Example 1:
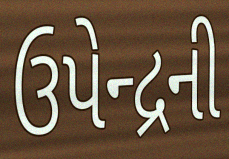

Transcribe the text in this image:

ઉપેન્દ્રની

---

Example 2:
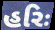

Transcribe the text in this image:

હરિઃ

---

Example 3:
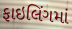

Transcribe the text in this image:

ફાઇલિંગમાં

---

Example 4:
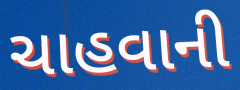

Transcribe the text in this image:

ચાહવાની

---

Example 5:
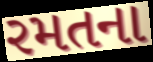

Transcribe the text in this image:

રમતના